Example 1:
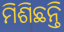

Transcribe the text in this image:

ମିଶିଛନ୍ତି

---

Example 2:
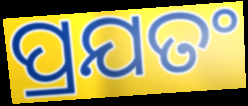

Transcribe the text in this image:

ପ୍ରଯତଂ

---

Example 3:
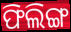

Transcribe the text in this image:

ଫିଲିଙ୍ଗ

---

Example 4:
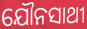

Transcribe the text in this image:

ଯୌନସାଥୀ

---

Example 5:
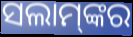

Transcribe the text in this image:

ସଲାମ୍‌ଙ୍କର